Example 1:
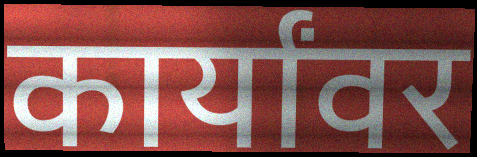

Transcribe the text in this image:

कार्यांवर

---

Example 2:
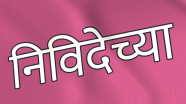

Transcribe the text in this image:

निविदेच्या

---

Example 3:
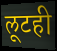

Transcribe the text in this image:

लूटही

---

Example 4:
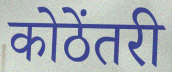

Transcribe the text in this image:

कोठेंतरी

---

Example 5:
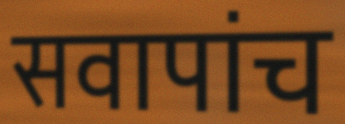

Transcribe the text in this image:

सवापांच